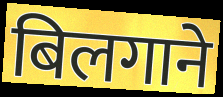
बिलगाने